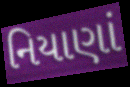
નિયાણાં